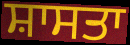
ਸ਼ਾਸਤਾ